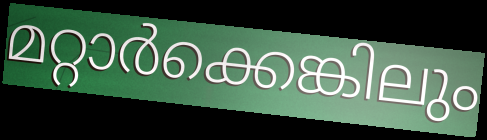
മറ്റാർക്കെങ്കിലും